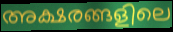
അക്ഷരങ്ങളിലെ